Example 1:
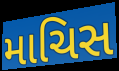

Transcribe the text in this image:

માચિસ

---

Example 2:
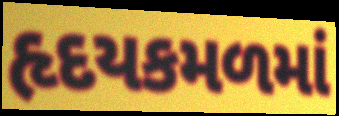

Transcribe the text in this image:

હૃદયકમળમાં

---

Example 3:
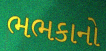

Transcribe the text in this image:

ભભકાનો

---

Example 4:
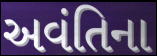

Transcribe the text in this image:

અવંતિના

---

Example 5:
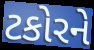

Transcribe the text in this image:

ટકોરને